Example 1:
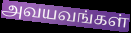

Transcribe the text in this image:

அவயவங்கள்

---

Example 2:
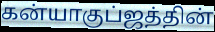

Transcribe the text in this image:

கன்யாகுப்ஜத்தின்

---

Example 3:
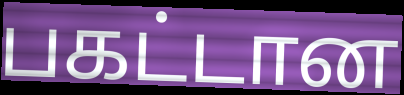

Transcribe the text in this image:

பகட்டான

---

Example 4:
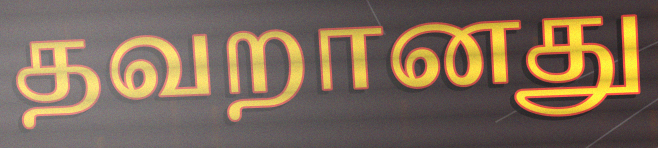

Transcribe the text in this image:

தவறானது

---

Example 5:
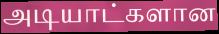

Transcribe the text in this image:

அடியாட்களான